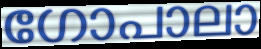
ഗോപാലാ